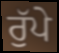
ਰੁੱਪੇ